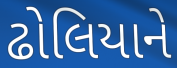
ઢોલિયાને